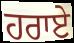
ਹਰਾਏ